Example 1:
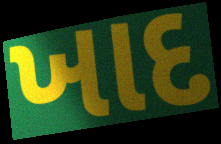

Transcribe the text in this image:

ખાદ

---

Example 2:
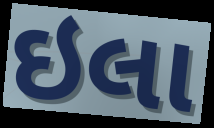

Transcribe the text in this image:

ઇલા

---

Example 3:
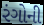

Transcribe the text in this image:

રંગોની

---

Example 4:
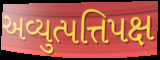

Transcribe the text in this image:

અવ્યુત્પત્તિપક્ષ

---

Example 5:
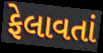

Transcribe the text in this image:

ફેલાવતાં